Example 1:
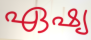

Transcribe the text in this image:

ഏഷ്യ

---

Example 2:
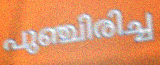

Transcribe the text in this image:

പുഞ്ചിരിച്ച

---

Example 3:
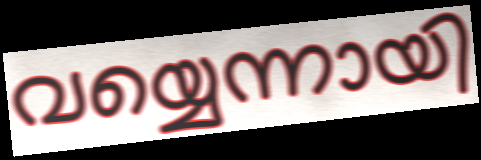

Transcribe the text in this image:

വയ്യെന്നായി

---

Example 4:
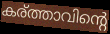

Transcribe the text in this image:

കര്ത്താവിന്റെ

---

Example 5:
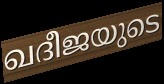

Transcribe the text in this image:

ഖദീജയുടെ